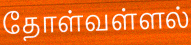
தோள்வள்ளல்